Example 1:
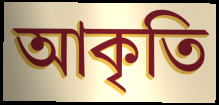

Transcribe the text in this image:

আকৃতি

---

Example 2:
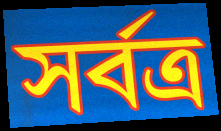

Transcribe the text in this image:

সর্বত্র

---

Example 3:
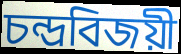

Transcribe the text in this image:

চন্দ্রবিজয়ী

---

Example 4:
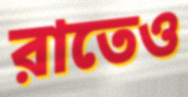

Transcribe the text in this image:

রাতেও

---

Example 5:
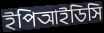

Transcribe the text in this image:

ইপিআইডিসি